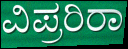
ವಿಪ್ರರಿರಾ